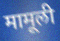
मामूली